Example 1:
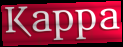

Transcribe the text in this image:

Kappa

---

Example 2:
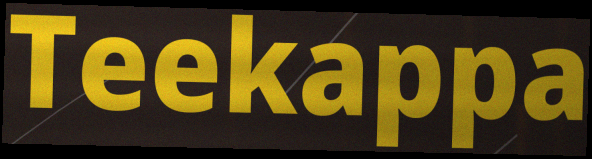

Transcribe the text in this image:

Teekappa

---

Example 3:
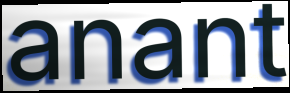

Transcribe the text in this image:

anant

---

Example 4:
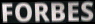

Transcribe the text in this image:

FORBES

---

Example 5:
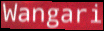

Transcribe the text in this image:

Wangari